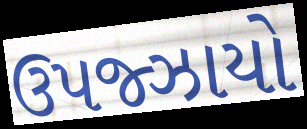
ઉપજ્ઝાયો